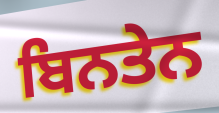
ਬਿਨਤੇਨ